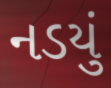
નડયું